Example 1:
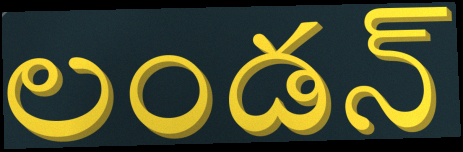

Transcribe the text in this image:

లండన్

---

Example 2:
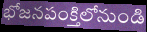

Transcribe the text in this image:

భోజనపంక్తిలోనుండి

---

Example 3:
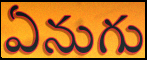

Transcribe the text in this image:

ఏనుగు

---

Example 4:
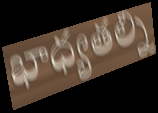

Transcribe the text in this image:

భాధ్యతల్ని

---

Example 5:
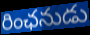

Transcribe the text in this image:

రింఛనుడు